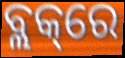
ବ୍ଲକ୍‌ରେ